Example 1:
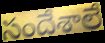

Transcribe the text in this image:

సందేశాలే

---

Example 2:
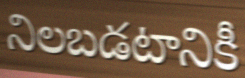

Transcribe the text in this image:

నిలబడటానికీ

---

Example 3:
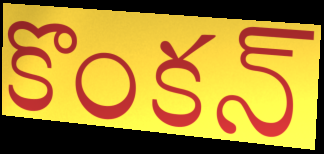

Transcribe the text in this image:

కొంకన్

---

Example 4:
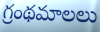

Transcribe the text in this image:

గ్రంథమాలలు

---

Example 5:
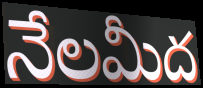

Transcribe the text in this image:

నేలమీద